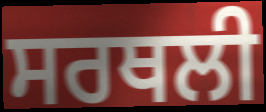
ਸਰਥਲੀ